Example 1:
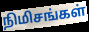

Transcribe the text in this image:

நிமிசங்கள்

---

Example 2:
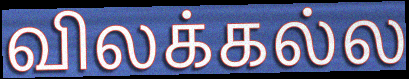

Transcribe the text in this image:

விலக்கல்ல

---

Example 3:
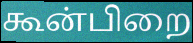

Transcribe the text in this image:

கூன்பிறை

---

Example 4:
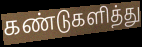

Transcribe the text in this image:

கண்டுகளித்து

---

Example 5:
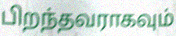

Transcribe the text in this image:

பிறந்தவராகவும்